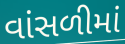
વાંસળીમાં